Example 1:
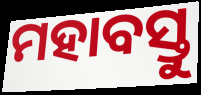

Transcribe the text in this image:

ମହାବସ୍ତୁ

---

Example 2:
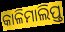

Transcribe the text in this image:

କାଳିମାଲିପ୍ତ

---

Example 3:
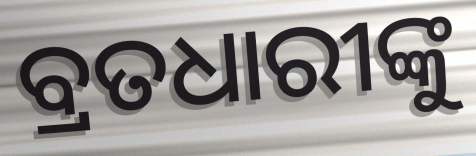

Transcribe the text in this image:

ବ୍ରତଧାରୀଙ୍କୁ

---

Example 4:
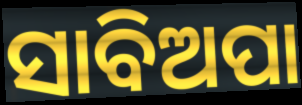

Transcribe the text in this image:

ସାବିଅପା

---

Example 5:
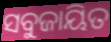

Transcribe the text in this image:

ସବୁଜାୟିତ